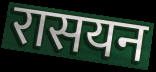
रासयन